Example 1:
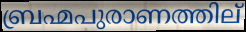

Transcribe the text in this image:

ബ്രഹ്മപുരാണത്തില്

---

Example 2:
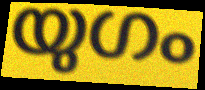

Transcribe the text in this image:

യുഗം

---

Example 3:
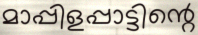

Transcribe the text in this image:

മാപ്പിളപ്പാട്ടിന്റെ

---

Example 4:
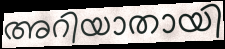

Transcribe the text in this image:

അറിയാതായി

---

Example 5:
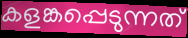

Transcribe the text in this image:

കളങ്കപ്പെടുന്നത്